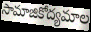
సామాజికోద్యమాల